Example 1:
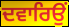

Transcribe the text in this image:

ਦਵਾਰਿਉਂ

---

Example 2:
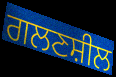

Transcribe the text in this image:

ਗਲਣਸ਼ੀਲ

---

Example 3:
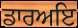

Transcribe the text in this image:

ਡਾਰਅਇ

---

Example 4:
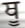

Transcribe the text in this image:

ਥੂ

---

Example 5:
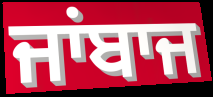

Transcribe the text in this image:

ਜਾਂਬਾਜ